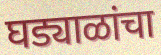
घड्याळांचा